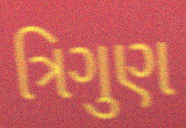
ત્રિગુણ